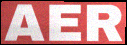
AER